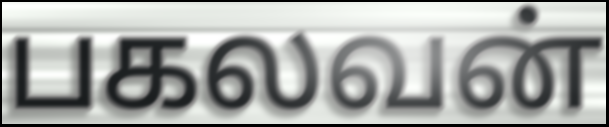
பகலவன்